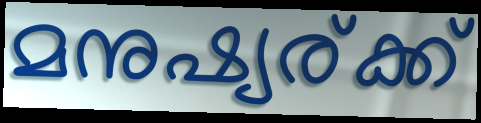
മനുഷ്യര്ക്ക്